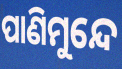
ପାଣିମୁନ୍ଦେ